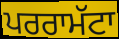
ਪਰਰਾਮੱਟਾ